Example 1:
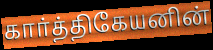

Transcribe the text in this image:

கார்த்திகேயனின்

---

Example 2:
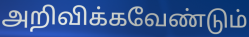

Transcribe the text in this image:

அறிவிக்கவேண்டும்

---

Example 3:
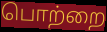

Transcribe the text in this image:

பொற்றை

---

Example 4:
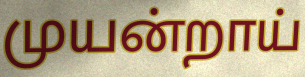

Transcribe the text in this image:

முயன்றாய்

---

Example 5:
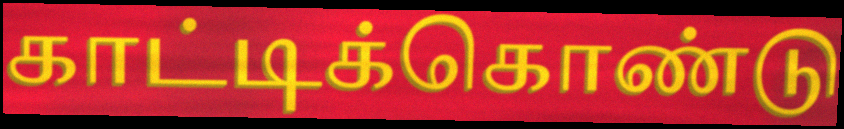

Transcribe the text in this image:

காட்டிக்கொண்டு